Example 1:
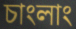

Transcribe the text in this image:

চাংলাং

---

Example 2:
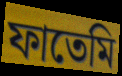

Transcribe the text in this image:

ফাতেমি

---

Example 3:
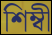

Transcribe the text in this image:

শিম্বী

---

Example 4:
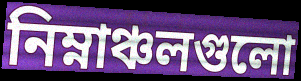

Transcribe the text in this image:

নিম্নাঞ্চলগুলো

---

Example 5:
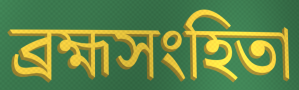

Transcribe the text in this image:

ব্রহ্মসংহিতা